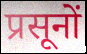
प्रसूनों